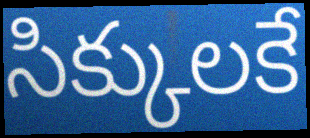
సిక్కులకే